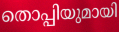
തൊപ്പിയുമായി